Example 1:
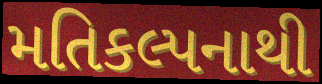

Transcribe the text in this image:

મતિકલ્પનાથી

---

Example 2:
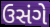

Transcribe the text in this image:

ઉસંગે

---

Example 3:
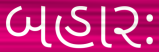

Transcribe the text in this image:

બહારઃ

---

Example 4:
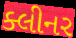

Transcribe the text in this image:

ક્લીનર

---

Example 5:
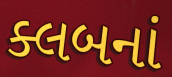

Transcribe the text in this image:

ક્લબનાં